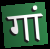
गां